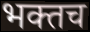
भक्तच